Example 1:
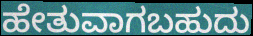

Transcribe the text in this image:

ಹೇತುವಾಗಬಹುದು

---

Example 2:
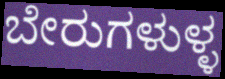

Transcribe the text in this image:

ಬೇರುಗಳುಳ್ಳ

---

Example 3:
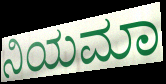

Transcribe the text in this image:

ನಿಯಮಾ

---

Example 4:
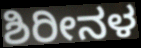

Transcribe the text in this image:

ಶಿರೀನಳ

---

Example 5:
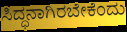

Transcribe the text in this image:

ಸಿದ್ಧನಾಗಿರಬೇಕೆಂದು